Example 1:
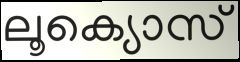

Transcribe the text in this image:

ലൂക്യൊസ്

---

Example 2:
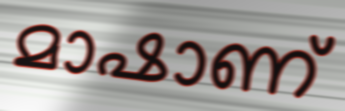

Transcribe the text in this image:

മാഷാണ്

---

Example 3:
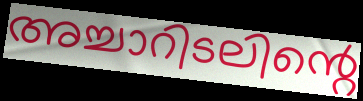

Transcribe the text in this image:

അച്ചാറിടലിന്റെ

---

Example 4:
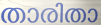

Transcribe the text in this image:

താരിതാ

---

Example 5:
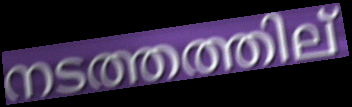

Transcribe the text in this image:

നടത്തത്തില്